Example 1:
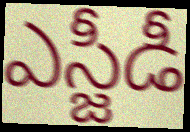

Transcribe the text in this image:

ఎస్జీడీ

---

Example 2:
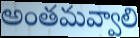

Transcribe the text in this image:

అంతమవ్వాలి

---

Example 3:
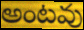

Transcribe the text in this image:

అంటవు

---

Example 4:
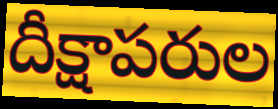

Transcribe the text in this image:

దీక్షాపరుల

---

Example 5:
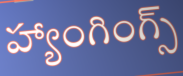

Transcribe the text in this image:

హ్యాంగింగ్స్